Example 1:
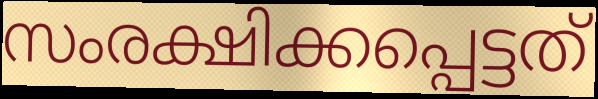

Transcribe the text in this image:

സംരക്ഷിക്കപ്പെട്ടത്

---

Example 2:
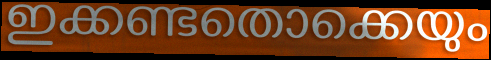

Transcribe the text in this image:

ഇക്കണ്ടതൊക്കെയും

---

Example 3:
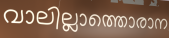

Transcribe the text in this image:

വാലില്ലാത്തൊരാന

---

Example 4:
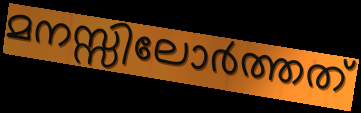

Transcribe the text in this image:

മനസ്സിലോർത്തത്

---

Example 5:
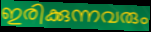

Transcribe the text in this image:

ഇരിക്കുന്നവരും